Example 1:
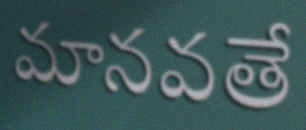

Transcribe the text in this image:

మానవతే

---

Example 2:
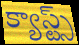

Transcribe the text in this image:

క్యాస్ట్స్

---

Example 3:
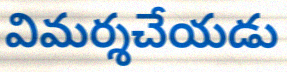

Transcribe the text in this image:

విమర్శచేయడు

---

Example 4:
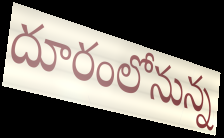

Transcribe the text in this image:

దూరంలోనున్న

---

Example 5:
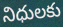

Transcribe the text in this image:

నిధులకు